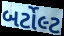
બર્ટોલ્ટ